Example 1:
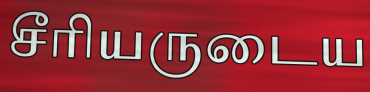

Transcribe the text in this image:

சீரியருடைய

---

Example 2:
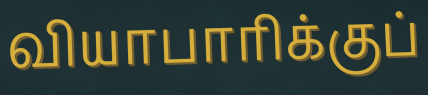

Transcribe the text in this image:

வியாபாரிக்குப்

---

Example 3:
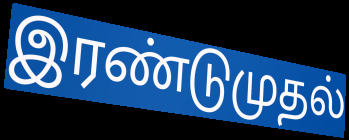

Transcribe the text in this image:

இரண்டுமுதல்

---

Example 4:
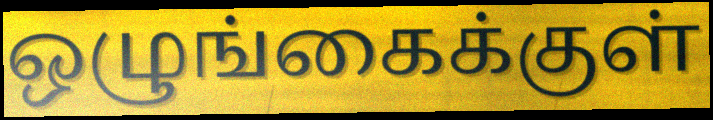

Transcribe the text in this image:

ஒழுங்கைக்குள்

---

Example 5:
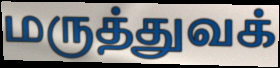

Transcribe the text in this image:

மருத்துவக்